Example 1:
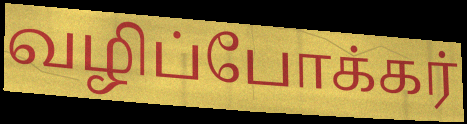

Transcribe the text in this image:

வழிப்போக்கர்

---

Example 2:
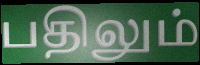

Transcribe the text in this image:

பதிலும்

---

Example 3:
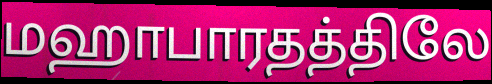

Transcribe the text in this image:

மஹாபாரதத்திலே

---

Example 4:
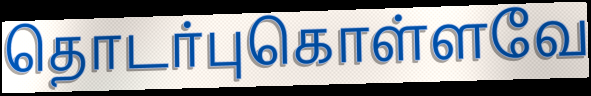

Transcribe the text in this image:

தொடர்புகொள்ளவே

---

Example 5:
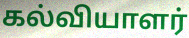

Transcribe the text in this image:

கல்வியாளர்